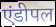
एंडीपल